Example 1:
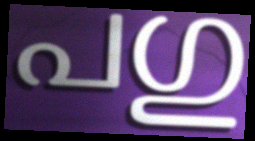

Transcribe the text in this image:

പഗു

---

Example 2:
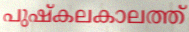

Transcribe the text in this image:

പുഷ്കലകാലത്ത്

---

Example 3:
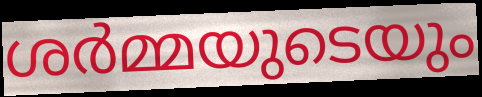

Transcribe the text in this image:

ശർമ്മയുടെയും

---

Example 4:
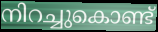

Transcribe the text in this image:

നിറച്ചുകൊണ്ട്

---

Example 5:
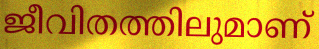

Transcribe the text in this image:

ജീവിതത്തിലുമാണ്